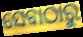
ସେବାଠାରୁ